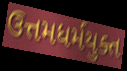
ઉત્તમધર્મયુક્ત